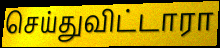
செய்துவிட்டாரா